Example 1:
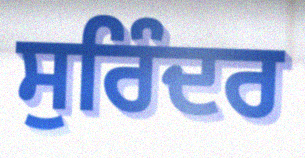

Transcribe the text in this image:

ਸੁਰਿੰਦਰ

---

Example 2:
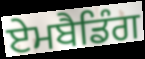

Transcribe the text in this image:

ਏਮਬੈਡਿੰਗ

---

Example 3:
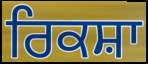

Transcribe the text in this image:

ਰਿਕਸ਼ਾ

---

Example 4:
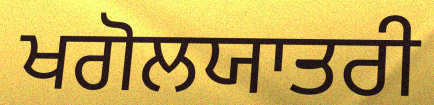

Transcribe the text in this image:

ਖਗੋਲਯਾਤਰੀ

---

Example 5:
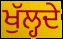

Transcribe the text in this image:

ਖੁੱਲ੍ਹਦੇ